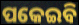
ପକେଇବି